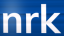
nrk